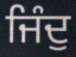
ਜਿੰਦੁ